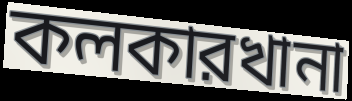
কলকারখানা